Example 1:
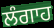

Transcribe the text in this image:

ਲੰਗਾਹ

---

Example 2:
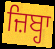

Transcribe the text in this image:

ਜ਼ਿਬ੍ਹਾ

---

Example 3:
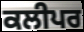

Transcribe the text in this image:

ਕਲੀਪਰ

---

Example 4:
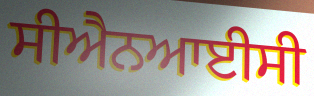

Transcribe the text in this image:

ਸੀਐਨਆਈਸੀ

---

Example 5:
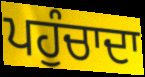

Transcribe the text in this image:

ਪਹੁੰਚਾਦਾ